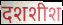
दशशीश